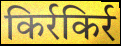
किर्रकिर्र